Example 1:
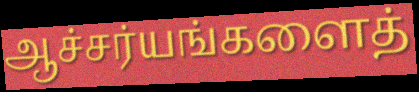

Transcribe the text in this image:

ஆச்சர்யங்களைத்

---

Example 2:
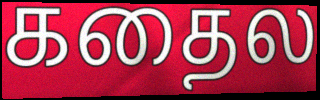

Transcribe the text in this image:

கதைல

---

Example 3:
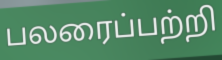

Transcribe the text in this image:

பலரைப்பற்றி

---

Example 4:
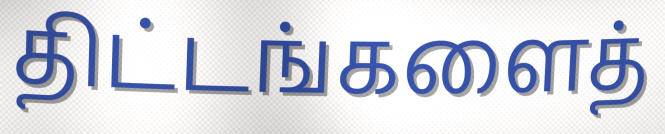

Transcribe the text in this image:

திட்டங்களைத்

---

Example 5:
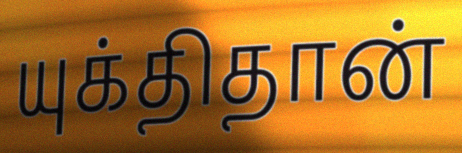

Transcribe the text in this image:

யுக்திதான்